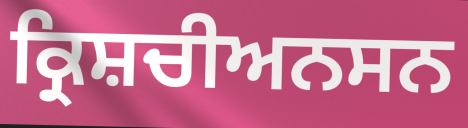
ਕ੍ਰਿਸ਼ਚੀਅਨਸਨ